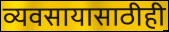
व्यवसायासाठीही